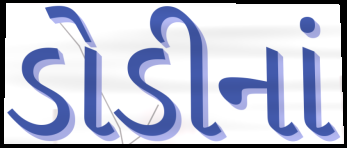
ડોડીનાં